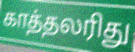
காத்தலரிது